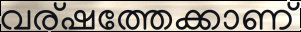
വര്ഷത്തേക്കാണ്